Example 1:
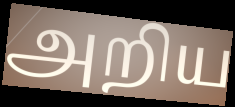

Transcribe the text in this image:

அறிய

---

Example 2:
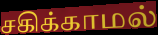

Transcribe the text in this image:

சகிக்காமல்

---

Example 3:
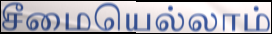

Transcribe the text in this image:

சீமையெல்லாம்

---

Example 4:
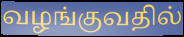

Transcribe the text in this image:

வழங்குவதில்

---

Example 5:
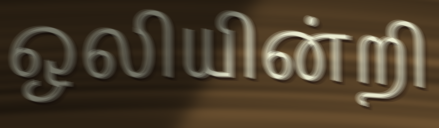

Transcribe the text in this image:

ஒலியின்றி